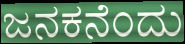
ಜನಕನೆಂದು